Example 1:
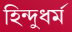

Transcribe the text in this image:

হিন্দুধৰ্ম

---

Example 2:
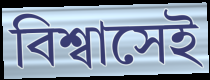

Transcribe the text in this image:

বিশ্বাসেই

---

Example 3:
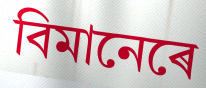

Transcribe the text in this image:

বিমানেৰে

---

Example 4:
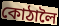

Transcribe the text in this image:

কোঠালৈ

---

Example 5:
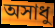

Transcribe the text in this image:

অসাধু